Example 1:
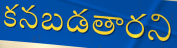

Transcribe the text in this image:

కనబడతారని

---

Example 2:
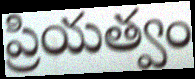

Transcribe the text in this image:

ప్రియత్వం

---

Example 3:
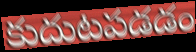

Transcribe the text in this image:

కుదుటపడడం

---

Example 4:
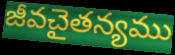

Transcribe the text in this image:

జీవచైతన్యము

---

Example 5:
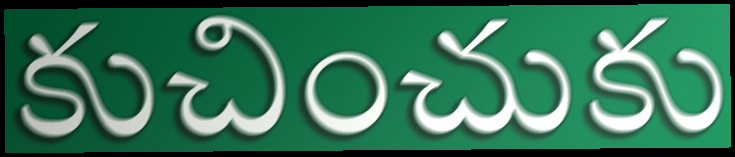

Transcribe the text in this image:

కుచించుకు